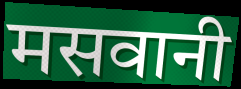
मसवानी